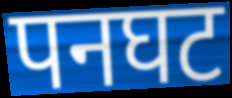
पनघट